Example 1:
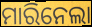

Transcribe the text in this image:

ମାରିନେଲା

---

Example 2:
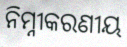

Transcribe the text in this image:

ନିମ୍ନୀକରଣୀୟ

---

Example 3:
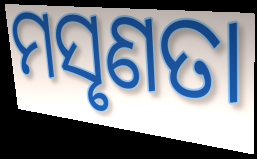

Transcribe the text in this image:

ମସୃଣତା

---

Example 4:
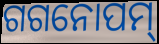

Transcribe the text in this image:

ଗଗନୋପମ୍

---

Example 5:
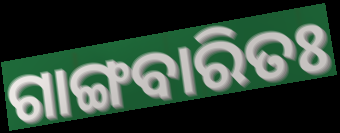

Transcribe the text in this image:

ଗାଙ୍ଗବାରିତଃ